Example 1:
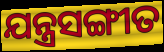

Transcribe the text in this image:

ଯନ୍ତ୍ରସଙ୍ଗୀତ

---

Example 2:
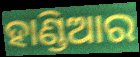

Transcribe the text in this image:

ହାଣ୍ଡିଆର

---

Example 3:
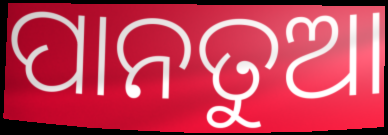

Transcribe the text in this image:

ପାନତୁଆ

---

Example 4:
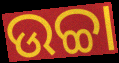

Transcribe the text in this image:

ଉଚ୍ଚା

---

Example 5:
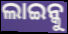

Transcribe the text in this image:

ଲାଇନ୍କୁ